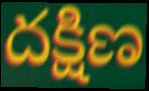
దక్షిణ